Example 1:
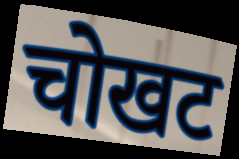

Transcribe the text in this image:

चोखट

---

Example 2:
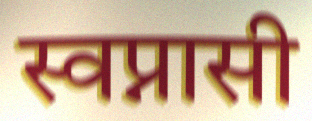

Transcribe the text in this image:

स्वप्नासी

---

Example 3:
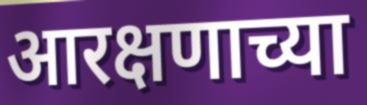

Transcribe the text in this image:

आरक्षणाच्या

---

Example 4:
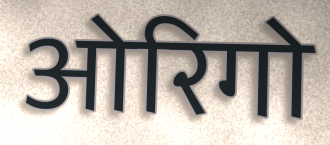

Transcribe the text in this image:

ओरिगो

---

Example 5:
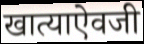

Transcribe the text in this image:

खात्याऐवजी